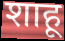
शाहू